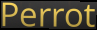
Perrot